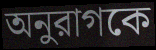
অনুরাগকে